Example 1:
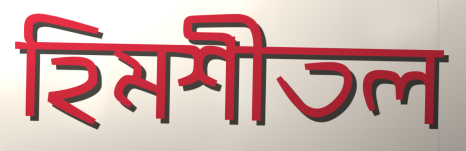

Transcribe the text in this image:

হিমশীতল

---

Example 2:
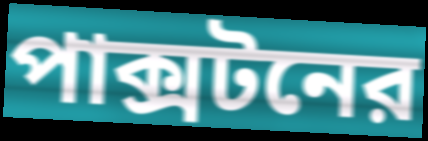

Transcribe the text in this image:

পাক্সটনের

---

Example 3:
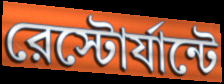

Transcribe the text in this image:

রেস্টোর্যান্টে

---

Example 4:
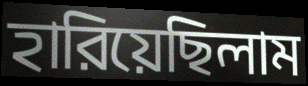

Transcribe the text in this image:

হারিয়েছিলাম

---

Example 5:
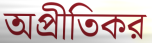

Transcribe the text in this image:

অপ্রীতিকর